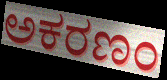
ಅಕರಣಂ